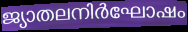
ജ്യാതലനിർഘോഷം